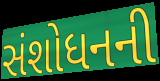
સંશોધનની